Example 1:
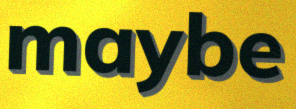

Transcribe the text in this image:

maybe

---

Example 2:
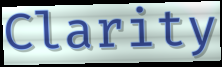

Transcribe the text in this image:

Clarity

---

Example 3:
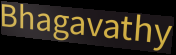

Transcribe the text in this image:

Bhagavathy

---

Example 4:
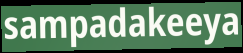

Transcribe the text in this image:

sampadakeeya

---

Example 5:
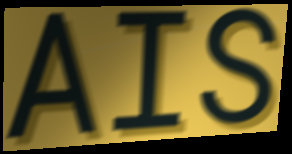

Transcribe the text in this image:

AIS